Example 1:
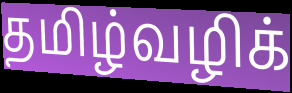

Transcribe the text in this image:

தமிழ்வழிக்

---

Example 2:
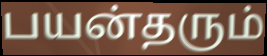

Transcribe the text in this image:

பயன்தரும்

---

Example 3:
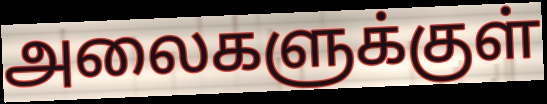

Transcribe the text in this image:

அலைகளுக்குள்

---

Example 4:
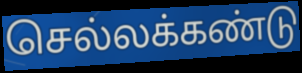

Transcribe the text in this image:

செல்லக்கண்டு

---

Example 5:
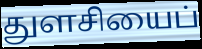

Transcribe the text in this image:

துளசியைப்